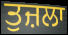
ਤੁਜ਼ਲਾ